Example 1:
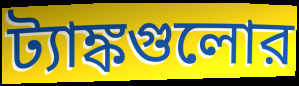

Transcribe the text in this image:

ট্যাঙ্কগুলোর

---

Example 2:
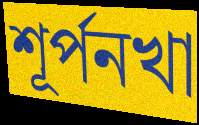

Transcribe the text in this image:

শূর্পনখা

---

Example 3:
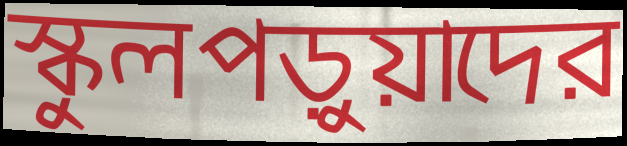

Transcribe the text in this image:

স্কুলপড়ুয়াদের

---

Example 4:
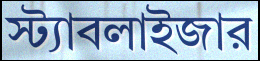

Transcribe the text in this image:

স্ট্যাবলাইজার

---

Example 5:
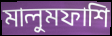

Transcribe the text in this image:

মালুমফাশি